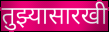
तुझ्यासारखी